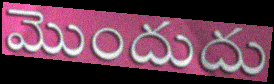
మొందుదు